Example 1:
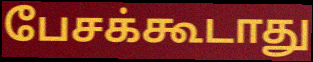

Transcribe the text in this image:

பேசக்கூடாது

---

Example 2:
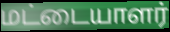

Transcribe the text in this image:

மட்டையாளர்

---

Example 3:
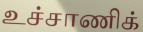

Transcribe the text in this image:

உச்சாணிக்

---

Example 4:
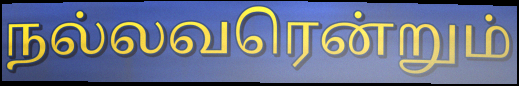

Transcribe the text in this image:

நல்லவரென்றும்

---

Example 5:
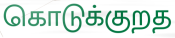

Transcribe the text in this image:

கொடுக்குறத